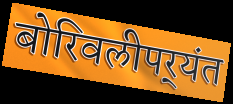
बोरिवलीपर्यंत